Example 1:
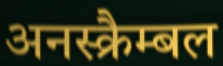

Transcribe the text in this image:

अनस्क्रैम्बल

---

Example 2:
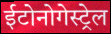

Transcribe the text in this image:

ईटोनोगेस्ट्रेल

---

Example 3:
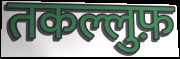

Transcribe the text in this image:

तकल्लुफ़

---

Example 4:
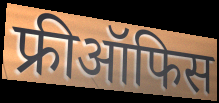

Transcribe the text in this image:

फ्रीऑफिस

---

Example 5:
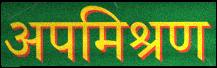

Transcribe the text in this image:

अपमिश्रण